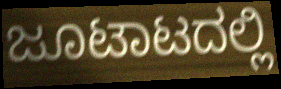
ಜೂಟಾಟದಲ್ಲಿ